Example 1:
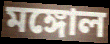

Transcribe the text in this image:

মঙ্গোল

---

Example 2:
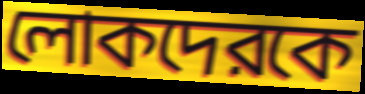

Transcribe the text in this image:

লোকদেরকে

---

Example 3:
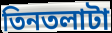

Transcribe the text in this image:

তিনতলাটা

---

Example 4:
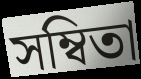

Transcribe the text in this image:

সম্বিতা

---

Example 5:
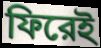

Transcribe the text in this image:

ফিরেই